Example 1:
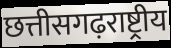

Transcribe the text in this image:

छत्तीसगढ़राष्ट्रीय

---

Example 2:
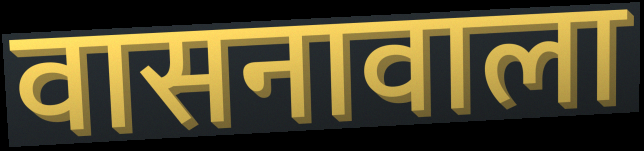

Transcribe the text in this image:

वासनावाला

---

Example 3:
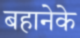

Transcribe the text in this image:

बहानेके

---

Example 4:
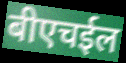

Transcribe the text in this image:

बीएचईल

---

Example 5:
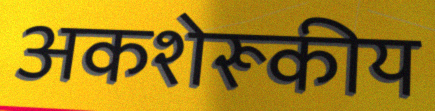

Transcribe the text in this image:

अकशेरूकीय